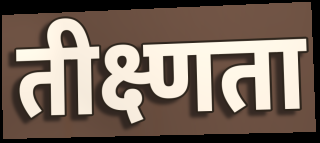
तीक्ष्णता